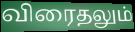
விரைதலும்